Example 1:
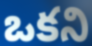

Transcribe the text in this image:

ఒకని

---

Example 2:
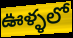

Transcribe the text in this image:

ఊళ్ళలో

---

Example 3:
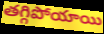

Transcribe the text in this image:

తగ్గిపోయాయి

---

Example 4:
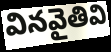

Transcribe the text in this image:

వినవైతివి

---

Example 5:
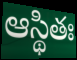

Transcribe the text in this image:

ఆస్థితః